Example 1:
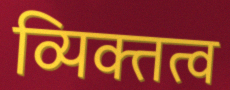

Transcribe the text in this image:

व्यिक्तत्व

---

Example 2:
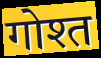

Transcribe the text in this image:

गोश्‍त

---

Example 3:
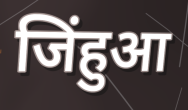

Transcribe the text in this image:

जिंहुआ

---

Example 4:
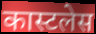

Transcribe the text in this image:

कास्टलेस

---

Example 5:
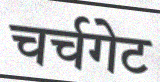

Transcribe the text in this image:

चर्चगेट